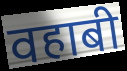
वहाबी